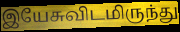
இயேசுவிடமிருந்து